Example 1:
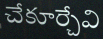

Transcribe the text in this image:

చేకూర్చేవి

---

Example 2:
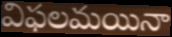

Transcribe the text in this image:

విఫలమయినా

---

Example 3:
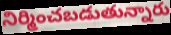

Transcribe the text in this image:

నిర్మించబడుతున్నారు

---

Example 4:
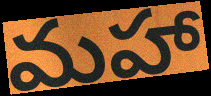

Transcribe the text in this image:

మహా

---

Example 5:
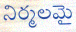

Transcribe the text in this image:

నిర్మలమై